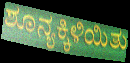
ಶೂನ್ಯಕ್ಕಿಳಿಯಿತು